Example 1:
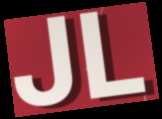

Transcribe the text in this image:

JL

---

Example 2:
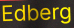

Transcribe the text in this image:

Edberg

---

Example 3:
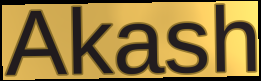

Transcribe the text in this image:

Akash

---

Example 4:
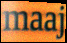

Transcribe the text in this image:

maaj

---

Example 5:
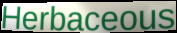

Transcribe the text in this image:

Herbaceous